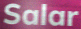
Salar